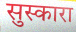
सुस्कारा